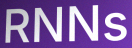
RNNs